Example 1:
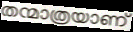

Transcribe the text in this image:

തന്മാത്രയാണ്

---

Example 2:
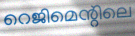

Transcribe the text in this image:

റെജിമെന്റിലെ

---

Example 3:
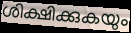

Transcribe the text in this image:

ശിക്ഷിക്കുകയും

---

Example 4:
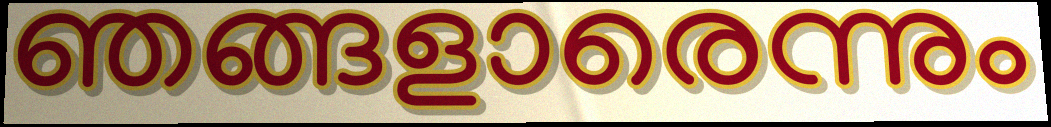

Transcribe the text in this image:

ഞങ്ങളാരെന്നും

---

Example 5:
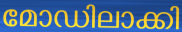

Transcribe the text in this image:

മോഡിലാക്കി